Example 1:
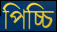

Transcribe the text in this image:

পিচ্চি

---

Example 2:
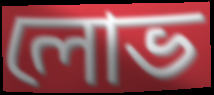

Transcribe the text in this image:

লোভ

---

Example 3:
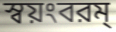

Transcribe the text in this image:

স্বয়ংবরম্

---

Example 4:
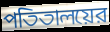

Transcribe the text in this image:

পতিতালয়ের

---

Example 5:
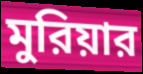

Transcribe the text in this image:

মুরিয়ার